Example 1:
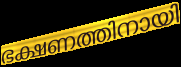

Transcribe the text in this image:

ഭക്ഷണത്തിനായി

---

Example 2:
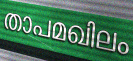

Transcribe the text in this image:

താപമഖിലം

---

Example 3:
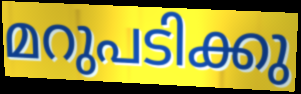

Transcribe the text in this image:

മറുപടിക്കു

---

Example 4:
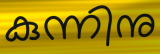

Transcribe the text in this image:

കുന്നിനു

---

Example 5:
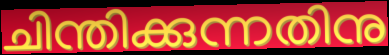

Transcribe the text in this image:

ചിന്തിക്കുന്നതിനു